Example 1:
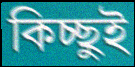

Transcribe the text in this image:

কিচ্ছুই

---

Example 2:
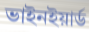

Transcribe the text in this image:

ভাইনইয়ার্ড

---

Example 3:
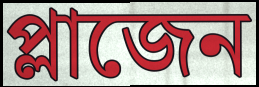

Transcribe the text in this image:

প্লাজেন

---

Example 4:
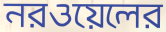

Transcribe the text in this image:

নরওয়েলের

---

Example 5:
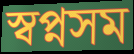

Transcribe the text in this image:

স্বপ্নসম